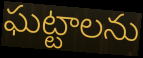
ఘట్టాలను